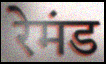
रेमंड